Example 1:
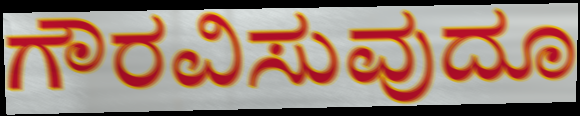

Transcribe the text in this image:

ಗೌರವಿಸುವುದೂ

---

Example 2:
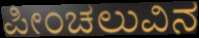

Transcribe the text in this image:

ಪೀಂಚಲುವಿನ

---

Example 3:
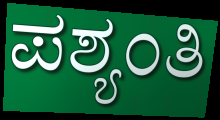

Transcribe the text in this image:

ಪಶ್ಯಂತಿ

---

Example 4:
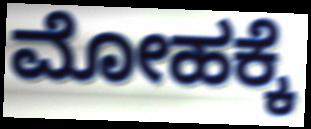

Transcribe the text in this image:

ಮೋಹಕ್ಕೆ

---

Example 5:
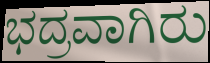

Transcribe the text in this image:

ಭದ್ರವಾಗಿರು